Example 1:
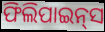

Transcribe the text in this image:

ଫିଲିପାଇନ୍‍ସ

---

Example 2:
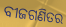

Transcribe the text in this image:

ବୀଜଗଣିତର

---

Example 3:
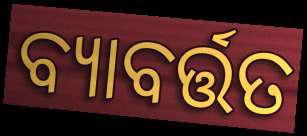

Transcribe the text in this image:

ବ୍ୟାବର୍ତ୍ତତ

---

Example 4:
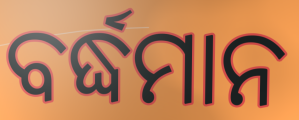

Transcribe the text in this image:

ବର୍ଦ୍ଧମାନ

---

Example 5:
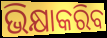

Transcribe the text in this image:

ଭିକ୍ଷାକରିବ